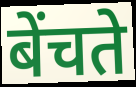
बेंचते